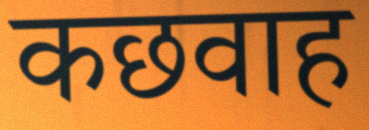
कछवाह